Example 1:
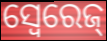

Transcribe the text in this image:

ସ୍ବେରେଜ୍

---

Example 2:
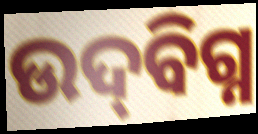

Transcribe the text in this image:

ଉଦ୍‍ବିଗ୍ନ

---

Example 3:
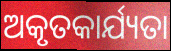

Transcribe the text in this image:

ଅକୃତକାର୍ଯ୍ୟତା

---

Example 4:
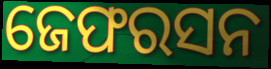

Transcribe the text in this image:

ଜେଫରସନ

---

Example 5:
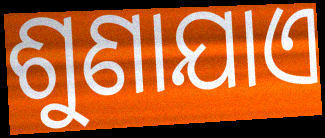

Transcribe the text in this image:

ଶୁଣାଯାଏ